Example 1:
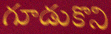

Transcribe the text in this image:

గూడుకొని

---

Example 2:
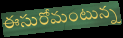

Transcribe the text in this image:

ఈసురోమంటున్న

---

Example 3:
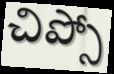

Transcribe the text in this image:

చిప్సో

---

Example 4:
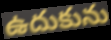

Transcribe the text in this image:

ఉదుకును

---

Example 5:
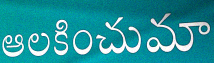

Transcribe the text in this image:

ఆలకించుమా